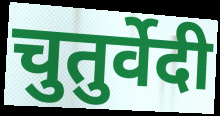
चुतुर्वेदी